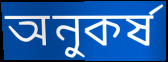
অনুকর্ষ